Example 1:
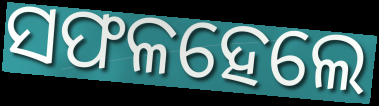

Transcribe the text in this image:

ସଫଳହେଲେ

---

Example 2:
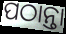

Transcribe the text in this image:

ପଠାନ୍ତା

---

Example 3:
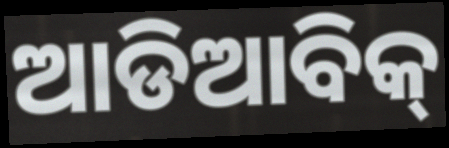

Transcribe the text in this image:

ଆଡିଆବିକ୍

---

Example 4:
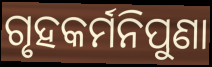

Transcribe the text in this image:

ଗୃହକର୍ମନିପୁଣା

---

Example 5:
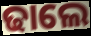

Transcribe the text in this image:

ଢାଲେ